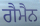
ਗੈਮੈਨ